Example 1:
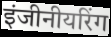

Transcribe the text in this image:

इंजीनीयरिंग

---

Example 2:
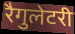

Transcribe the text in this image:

रैगुलेटरी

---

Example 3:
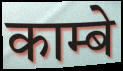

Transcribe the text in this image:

काम्बे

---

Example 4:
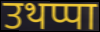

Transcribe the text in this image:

उथप्पा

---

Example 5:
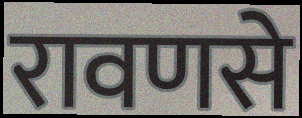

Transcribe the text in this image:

रावणसे